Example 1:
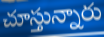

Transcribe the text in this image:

చూస్తున్నారు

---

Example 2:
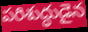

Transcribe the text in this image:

పరిశుద్ధుడైన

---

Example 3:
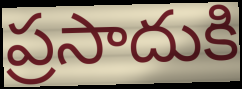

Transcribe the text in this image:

ప్రసాదుకి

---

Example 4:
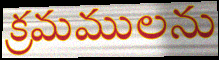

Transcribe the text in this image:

క్రమములను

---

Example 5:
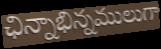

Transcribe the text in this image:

ఛిన్నాభిన్నములుగా